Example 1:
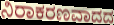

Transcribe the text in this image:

ನಿರಾಕರಣವಾದದ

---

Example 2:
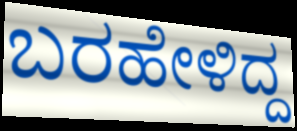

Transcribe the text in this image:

ಬರಹೇಳಿದ್ದ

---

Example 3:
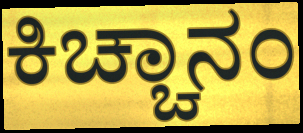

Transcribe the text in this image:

ಕಿಚ್ಚಾನಂ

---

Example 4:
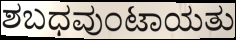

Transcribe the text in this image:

ಶಬಧವುಂಟಾಯತು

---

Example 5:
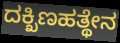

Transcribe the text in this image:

ದಕ್ಖಿಣಹತ್ಥೇನ